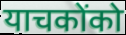
याचकोंको